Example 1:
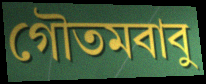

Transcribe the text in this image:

গৌতমবাবু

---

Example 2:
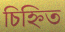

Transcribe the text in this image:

চিহ্নিত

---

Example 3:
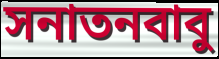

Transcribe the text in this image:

সনাতনবাবু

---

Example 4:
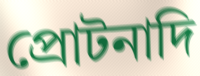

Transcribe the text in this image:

প্রোটনাদি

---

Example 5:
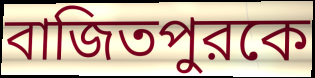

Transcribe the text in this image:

বাজিতপুরকে